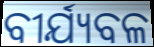
ବୀର୍ଯ୍ୟବଳ